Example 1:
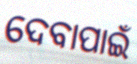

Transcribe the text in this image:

ଦେବାପାଇଁ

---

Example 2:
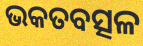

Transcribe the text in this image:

ଭକତବତ୍ସଳ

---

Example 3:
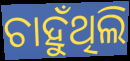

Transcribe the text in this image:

ଚାହୁଁଥିଲି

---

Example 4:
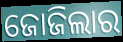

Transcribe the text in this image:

ଜୋଜିଲାର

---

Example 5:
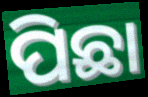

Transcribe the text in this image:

ପିଛା